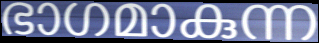
ഭാഗമാകുന്ന